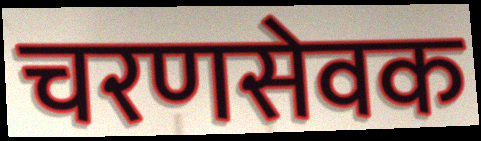
चरणसेवक